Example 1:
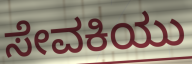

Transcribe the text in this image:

ಸೇವಕಿಯು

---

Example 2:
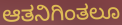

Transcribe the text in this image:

ಆತನಿಗಿಂತಲೂ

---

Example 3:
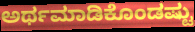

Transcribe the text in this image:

ಅರ್ಥಮಾಡಿಕೊಂಡಷ್ಟು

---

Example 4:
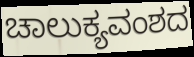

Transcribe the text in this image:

ಚಾಲುಕ್ಯವಂಶದ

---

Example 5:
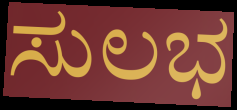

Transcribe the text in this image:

ಸುಲಭ